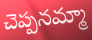
చెప్పనమ్మా